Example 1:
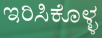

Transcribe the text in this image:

ಇರಿಸಿಕೊಳ್ಳ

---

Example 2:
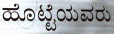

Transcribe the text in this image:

ಹೊಟ್ಟೆಯವರು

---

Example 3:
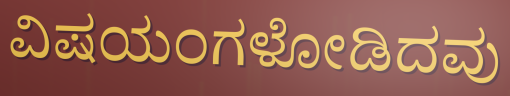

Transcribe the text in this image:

ವಿಷಯಂಗಳೋಡಿದವು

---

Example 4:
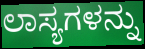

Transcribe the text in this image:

ಲಾಸ್ಯಗಳನ್ನು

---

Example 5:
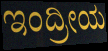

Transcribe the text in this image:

ಇಂದ್ರೀಯ